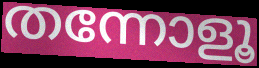
തന്നോളൂ